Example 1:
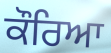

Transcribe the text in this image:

ਕੌਰਿਆ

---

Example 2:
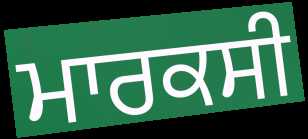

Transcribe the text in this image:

ਮਾਰਕਸੀ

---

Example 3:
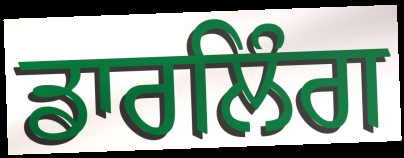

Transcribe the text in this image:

ਡਾਰਲਿੰਗ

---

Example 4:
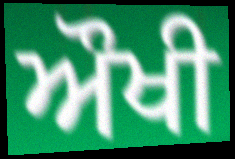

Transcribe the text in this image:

ਔਖੀ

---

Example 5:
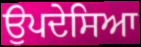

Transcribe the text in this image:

ਉਪਦੇਸਿਆ